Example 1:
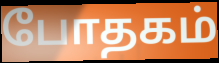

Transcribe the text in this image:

போதகம்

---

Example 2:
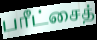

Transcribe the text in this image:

பரீட்சைத்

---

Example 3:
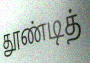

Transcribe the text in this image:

தூண்டித்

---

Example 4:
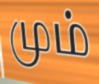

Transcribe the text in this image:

மும்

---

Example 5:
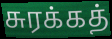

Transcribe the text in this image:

சுரக்கத்